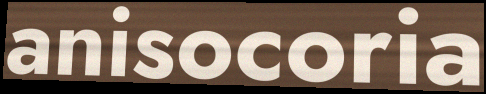
anisocoria